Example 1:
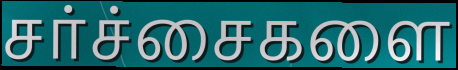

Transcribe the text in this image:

சர்ச்சைகளை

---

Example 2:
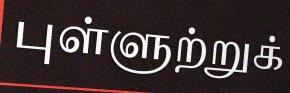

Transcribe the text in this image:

புள்ளுற்றுக்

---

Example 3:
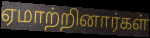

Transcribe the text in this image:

ஏமாற்றினார்கள்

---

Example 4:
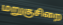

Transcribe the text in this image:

மறுகுசிறை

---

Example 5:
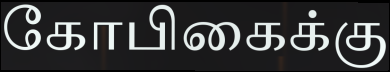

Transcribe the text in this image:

கோபிகைக்கு